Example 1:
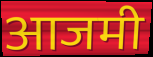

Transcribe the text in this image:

आजमी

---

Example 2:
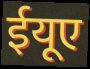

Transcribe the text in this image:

ईयूए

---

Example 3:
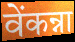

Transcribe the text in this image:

वेंकन्ना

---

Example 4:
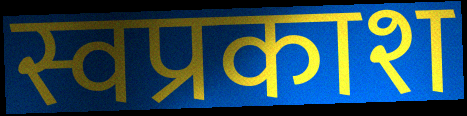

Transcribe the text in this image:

स्वप्रकाश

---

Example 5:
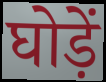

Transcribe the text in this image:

घोड़ें